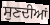
ਸੁਣਦੀਆਂ